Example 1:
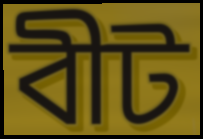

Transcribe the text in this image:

বীট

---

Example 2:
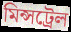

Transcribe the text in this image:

মিন্সট্রেল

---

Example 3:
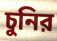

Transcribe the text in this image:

চুনির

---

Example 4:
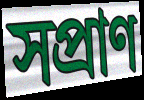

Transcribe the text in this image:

সপ্রাণ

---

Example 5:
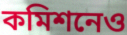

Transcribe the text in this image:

কমিশনেও